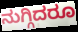
ನುಗ್ಗಿದರೂ